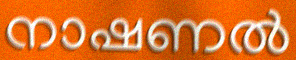
നാഷണൽ